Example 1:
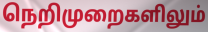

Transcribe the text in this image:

நெறிமுறைகளிலும்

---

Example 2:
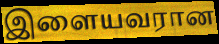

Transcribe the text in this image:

இளையவரான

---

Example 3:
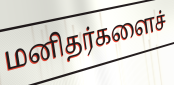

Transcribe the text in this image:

மனிதர்களைச்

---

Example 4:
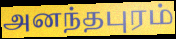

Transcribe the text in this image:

அனந்தபுரம்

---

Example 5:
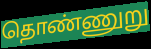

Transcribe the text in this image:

தொண்ணுறு